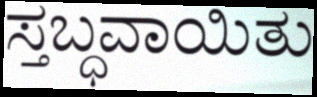
ಸ್ತಬ್ಧವಾಯಿತು